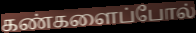
கண்களைப்போல்